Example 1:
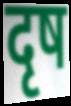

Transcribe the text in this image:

दृष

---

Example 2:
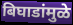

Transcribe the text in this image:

बिघाडांमुळे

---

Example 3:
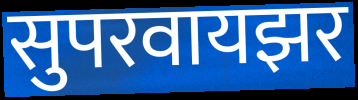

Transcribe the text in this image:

सुपरवायझर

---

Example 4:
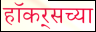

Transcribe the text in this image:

हॉकर्सच्या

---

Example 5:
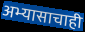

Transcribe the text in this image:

अभ्यासाचाही